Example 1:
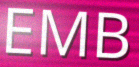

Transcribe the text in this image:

EMB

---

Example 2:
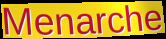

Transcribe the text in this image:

Menarche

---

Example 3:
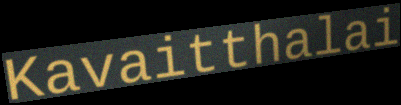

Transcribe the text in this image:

Kavaitthalai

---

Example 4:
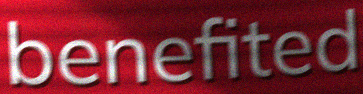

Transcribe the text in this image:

benefited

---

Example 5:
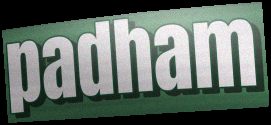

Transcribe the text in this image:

padham